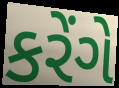
કરેંગે